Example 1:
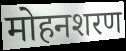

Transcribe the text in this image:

मोहनशरण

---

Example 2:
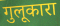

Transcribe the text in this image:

गुलूकारा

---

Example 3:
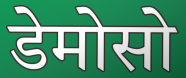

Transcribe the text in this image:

डेमोसो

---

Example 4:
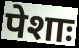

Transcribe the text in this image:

पेशाः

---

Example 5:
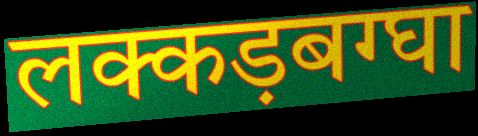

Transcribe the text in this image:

लक्कड़बग्घा